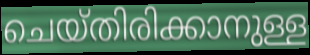
ചെയ്തിരിക്കാനുള്ള